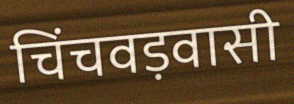
चिंचवड़वासी